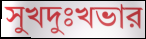
সুখদুঃখভার